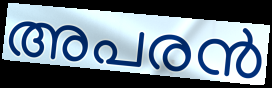
അപരൻ